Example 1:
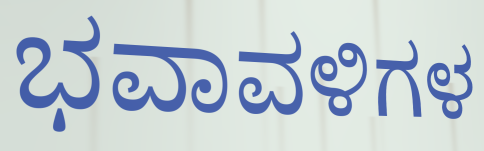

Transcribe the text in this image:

ಭವಾವಳಿಗಳ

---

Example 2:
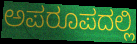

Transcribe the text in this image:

ಅಪರೂಪದಲ್ಲಿ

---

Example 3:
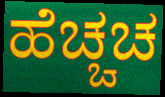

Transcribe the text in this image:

ಹೆಚ್ಚಚ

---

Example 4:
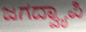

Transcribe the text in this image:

ಜಗದ್ವ್ಯಾಪಿ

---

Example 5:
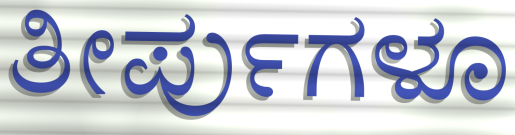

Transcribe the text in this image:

ತೀರ್ಪುಗಳೂ